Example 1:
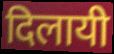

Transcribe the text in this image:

दिलायी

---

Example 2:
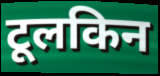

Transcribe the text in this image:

टूलकिन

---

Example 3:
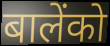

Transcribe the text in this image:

बालेंको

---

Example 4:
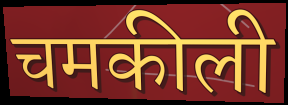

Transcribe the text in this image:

चमकीली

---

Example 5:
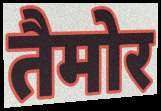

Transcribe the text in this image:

तैमोर